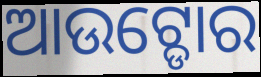
ଆଉଟ୍ଡୋର